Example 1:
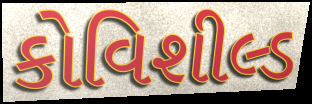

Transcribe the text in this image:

કોવિશીલ્ડ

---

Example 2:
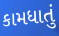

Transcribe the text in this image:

કામધાતું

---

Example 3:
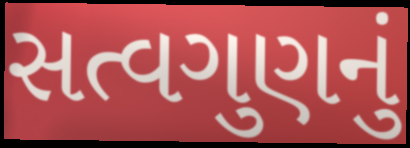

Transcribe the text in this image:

સત્વગુણનું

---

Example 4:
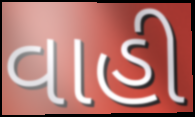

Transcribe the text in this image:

વાહી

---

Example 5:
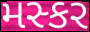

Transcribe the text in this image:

મસ્કર